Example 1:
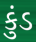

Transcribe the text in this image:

કુંડ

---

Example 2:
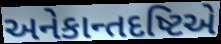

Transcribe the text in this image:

અનેકાન્તદષ્ટિએ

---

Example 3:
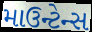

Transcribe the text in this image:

માઉન્ટેન્સ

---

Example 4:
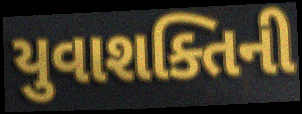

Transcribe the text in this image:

યુવાશક્તિની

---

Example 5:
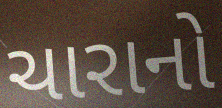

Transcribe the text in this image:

ચારાનો